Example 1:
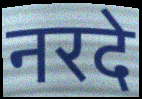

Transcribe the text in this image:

नरदे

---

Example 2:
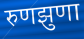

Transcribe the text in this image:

रुणझुणा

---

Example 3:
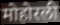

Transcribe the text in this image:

मोहोरली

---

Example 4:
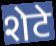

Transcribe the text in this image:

शेटे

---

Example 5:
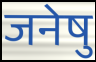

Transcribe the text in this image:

जनेषु